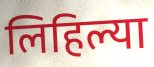
लिहिल्या